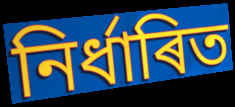
নিৰ্ধাৰিত